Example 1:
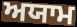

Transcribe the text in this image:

ਅਯਾਮ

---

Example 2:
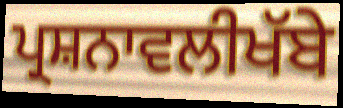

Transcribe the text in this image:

ਪ੍ਰਸ਼ਨਾਵਲੀਖੱਬੇ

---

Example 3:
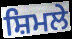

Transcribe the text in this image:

ਸ਼ਿਮਲੇ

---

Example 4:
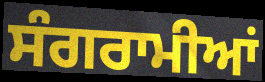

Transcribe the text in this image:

ਸੰਗਰਾਮੀਆਂ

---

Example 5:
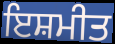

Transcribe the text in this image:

ਇਸ਼ਮੀਤ